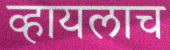
व्हायलाच